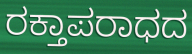
ರಕ್ತಾಪರಾಧದ